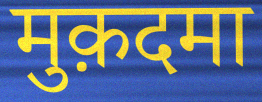
मुक़दमा